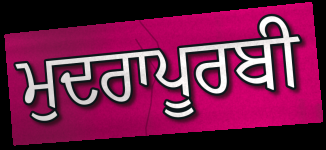
ਮੁਦਰਾਪੂਰਬੀ